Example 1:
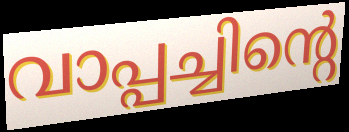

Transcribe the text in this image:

വാപ്പച്ചിന്റെ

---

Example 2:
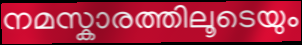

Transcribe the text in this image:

നമസ്കാരത്തിലൂടെയും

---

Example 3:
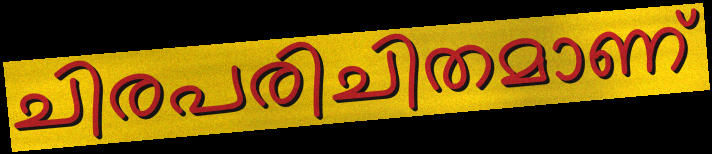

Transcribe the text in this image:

ചിരപരിചിതമാണ്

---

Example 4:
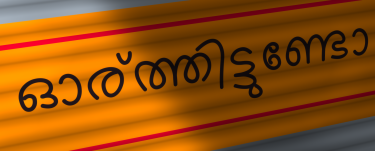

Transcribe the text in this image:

ഓര്ത്തിട്ടുണ്ടോ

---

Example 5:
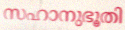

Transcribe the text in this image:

സഹാനുഭൂതി